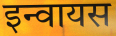
इन्वायस